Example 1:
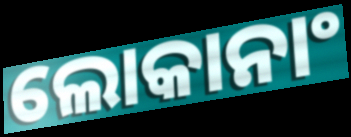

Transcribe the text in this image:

ଲୋକାନାଂ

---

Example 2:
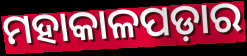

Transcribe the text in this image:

ମହାକାଳପଡ଼ାର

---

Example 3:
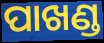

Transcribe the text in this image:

ପାଖଣ୍ଡ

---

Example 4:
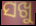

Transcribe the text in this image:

ସଖୁ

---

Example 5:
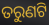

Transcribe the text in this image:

ତରୁଣଟି